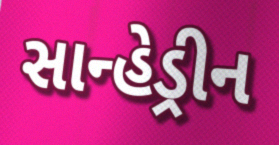
સાન્હેડ્રીન